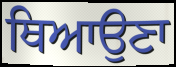
ਥਿਆਉਣਾ